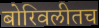
बोरिवलीतच